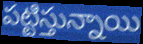
పట్టిస్తున్నాయి